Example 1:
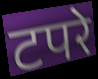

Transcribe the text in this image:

टपरे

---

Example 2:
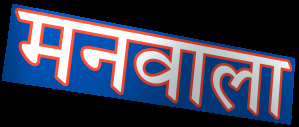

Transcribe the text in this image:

मनवाला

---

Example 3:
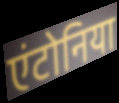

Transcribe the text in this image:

एंटोनिया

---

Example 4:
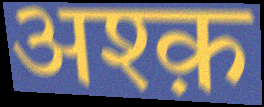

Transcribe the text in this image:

अश्क़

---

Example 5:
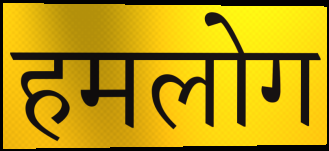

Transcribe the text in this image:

हमलोग